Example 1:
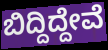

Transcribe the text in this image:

ಬಿದ್ದಿದ್ದೇವೆ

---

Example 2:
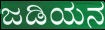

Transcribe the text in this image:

ಜಡಿಯನ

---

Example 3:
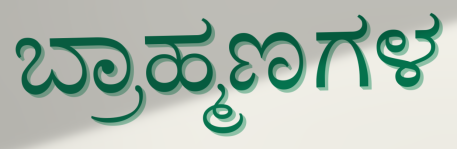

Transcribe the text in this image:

ಬ್ರಾಹ್ಮಣಗಳ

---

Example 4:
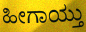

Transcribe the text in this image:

ಹೀಗಾಯ್ತು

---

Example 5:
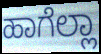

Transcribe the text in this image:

ಹಾಗೆಲ್ಲಾ